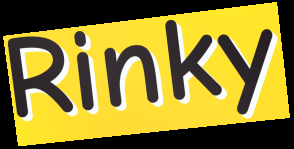
Rinky